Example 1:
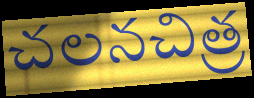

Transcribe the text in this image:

చలనచిత్ర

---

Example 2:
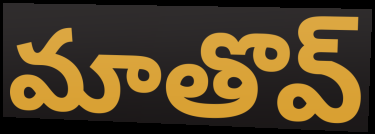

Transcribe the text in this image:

మాతొవ్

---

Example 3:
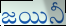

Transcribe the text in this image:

జయినీ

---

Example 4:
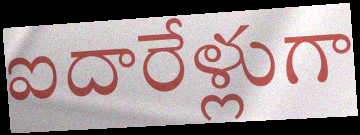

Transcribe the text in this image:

ఐదారేళ్లుగా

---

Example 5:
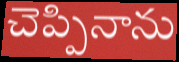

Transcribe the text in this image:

చెప్పినాను